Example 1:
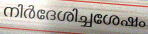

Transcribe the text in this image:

നിർദേശിച്ചശേഷം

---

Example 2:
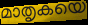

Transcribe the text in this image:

മാതൃകയെ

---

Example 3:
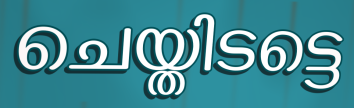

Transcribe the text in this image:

ചെയ്തിടട്ടെ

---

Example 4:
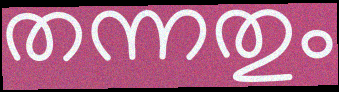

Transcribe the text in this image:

തന്നതും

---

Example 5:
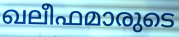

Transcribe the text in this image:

ഖലീഫമാരുടെ